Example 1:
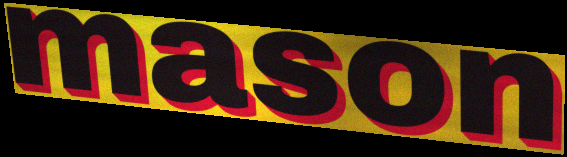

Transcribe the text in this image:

mason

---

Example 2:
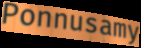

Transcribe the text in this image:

Ponnusamy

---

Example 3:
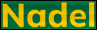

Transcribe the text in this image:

Nadel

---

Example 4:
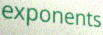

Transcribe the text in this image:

exponents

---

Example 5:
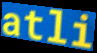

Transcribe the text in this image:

atli